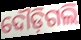
ଦୌଡ଼ିଗଲି